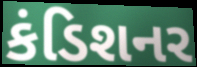
કંડિશનર